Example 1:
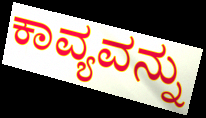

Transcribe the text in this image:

ಕಾವ್ಯವನ್ನು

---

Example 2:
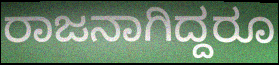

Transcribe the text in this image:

ರಾಜನಾಗಿದ್ದರೂ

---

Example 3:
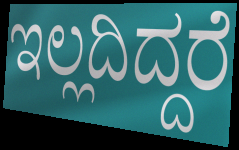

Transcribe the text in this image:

ಇಲ್ಲದಿದ್ದರೆ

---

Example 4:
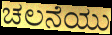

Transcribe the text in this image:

ಚಲನೆಯು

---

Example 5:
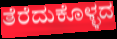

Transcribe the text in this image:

ತೆರೆದುಕೊಳ್ಳದ